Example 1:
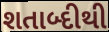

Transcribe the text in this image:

શતાબ્દીથી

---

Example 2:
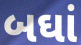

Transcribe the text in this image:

બઘાં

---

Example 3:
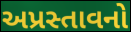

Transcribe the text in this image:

અપ્રસ્તાવનો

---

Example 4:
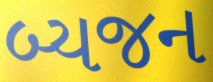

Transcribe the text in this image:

બ્યજન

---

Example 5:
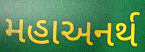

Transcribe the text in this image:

મહાઅનર્થ